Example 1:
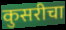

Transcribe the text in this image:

कुसरीचा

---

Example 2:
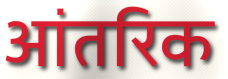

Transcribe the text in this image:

आंतरिक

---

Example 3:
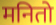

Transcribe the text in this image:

मनितो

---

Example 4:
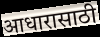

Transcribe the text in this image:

आधारासाठी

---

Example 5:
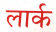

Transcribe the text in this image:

लार्क